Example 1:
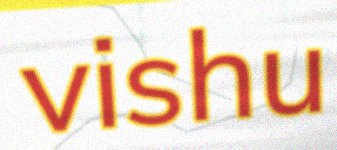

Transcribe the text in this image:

vishu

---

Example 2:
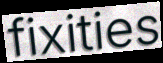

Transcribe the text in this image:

fixities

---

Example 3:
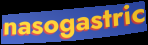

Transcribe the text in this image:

nasogastric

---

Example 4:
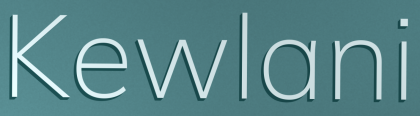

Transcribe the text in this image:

Kewlani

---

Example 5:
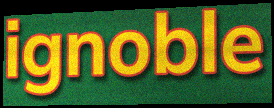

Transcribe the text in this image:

ignoble